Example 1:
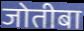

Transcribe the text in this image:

जोतीबा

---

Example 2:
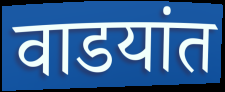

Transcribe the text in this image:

वाडयांत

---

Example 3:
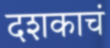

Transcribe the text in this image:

दशकाचं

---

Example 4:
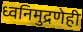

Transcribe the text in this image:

ध्वनिमुद्रणेही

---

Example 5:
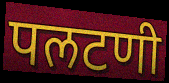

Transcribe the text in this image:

पलटणी